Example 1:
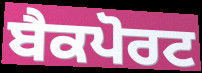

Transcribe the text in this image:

ਬੈਕਪੋਰਟ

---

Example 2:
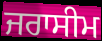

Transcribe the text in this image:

ਜਰਾਸੀਮ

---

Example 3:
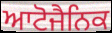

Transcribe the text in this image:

ਆਟੋਜੈਨਿਕ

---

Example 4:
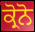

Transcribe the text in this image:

ਕ੍ਰੋਨੋ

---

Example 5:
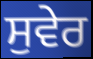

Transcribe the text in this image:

ਸੁਵੇਰ